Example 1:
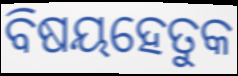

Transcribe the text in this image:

ବିଷୟହେତୁକ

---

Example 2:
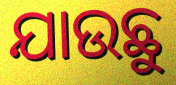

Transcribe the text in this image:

ଯାଉଛୁ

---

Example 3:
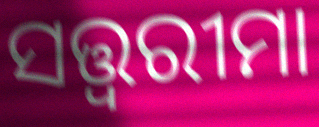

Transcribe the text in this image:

ସତ୍ତ୍ୱରୀମା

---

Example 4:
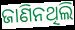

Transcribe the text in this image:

ଜାଣିନଥିଲି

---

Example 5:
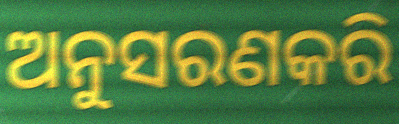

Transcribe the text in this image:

ଅନୁସରଣକରି